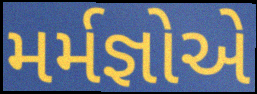
મર્મજ્ઞોએ